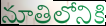
నూతిలోనికి